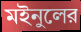
মইনুলের